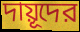
দায়ূদের